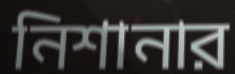
নিশানার